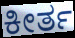
ಕೀರ್ತ